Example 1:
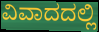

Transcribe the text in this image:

ವಿವಾದದಲ್ಲಿ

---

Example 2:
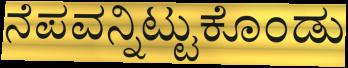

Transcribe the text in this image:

ನೆಪವನ್ನಿಟ್ಟುಕೊಂಡು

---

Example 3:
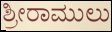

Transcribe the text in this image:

ಶ್ರೀರಾಮುಲು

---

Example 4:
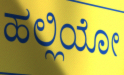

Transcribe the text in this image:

ಹಲ್ಲಿಯೋ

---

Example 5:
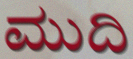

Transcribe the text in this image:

ಮುದಿ